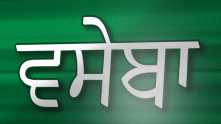
ਵਸੇਬਾ